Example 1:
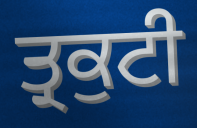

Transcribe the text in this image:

ਤ੍ਰਕੁਟੀ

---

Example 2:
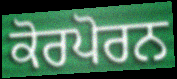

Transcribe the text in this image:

ਕੋਰਪੋਰਨ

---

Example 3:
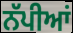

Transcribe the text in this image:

ਨੱਪੀਆਂ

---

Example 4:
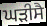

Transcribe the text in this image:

ਘੜੀਸੈ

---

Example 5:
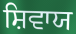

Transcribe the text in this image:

ਸ਼ਿਵਾਯ